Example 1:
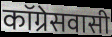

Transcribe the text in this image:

कॉग्रेसवासी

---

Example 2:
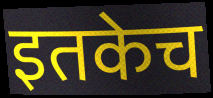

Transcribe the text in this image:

इतकेच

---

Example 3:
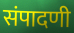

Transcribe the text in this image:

संपादणी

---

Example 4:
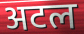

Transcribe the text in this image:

अटल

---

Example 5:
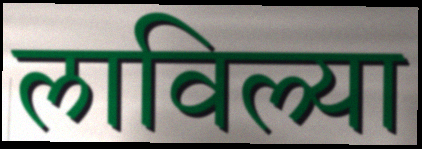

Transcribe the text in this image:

लाविल्या